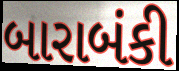
બારાબંકી